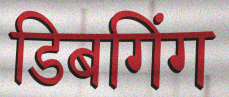
डिबगिंग